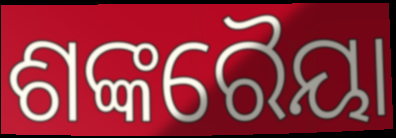
ଶଙ୍କରୈୟା